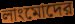
লাংমোদের